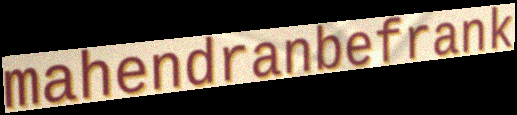
mahendranbefrank